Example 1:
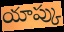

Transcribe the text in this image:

యాప్కు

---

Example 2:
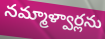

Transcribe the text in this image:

నమ్మాళ్వార్లను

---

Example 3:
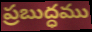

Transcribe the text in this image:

ప్రబుద్ధము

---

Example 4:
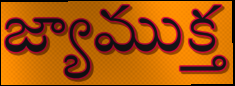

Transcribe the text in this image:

జ్యాముక్త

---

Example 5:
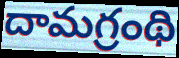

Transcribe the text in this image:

దామగ్రంథి